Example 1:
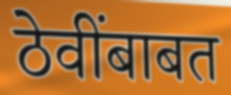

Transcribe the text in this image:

ठेवींबाबत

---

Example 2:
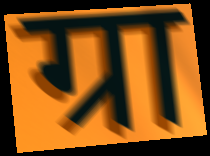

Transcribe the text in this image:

ग्रा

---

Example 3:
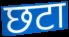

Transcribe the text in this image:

छटा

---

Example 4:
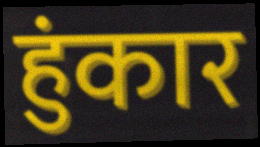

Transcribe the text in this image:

हुंकार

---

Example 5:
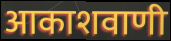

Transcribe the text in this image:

आकाशवाणी